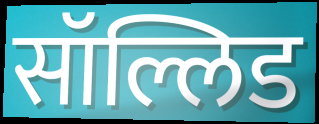
सॉल्लिड